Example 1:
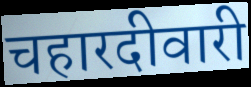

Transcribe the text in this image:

चहारदीवारी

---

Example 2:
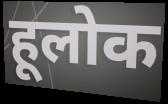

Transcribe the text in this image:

हूलोक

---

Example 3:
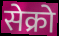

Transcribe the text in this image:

सेक्रो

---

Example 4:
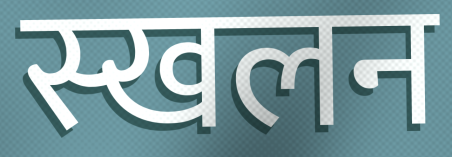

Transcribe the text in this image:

स्‍खलन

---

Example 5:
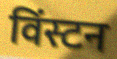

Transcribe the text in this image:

विंस्टन